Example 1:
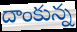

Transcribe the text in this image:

దాంకున్న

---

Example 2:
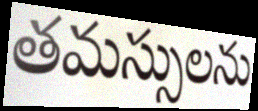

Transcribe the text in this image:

తమస్సులను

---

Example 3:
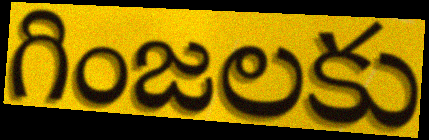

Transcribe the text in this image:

గింజలకు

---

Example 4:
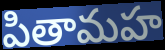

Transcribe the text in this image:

పితామహ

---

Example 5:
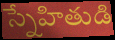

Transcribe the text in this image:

స్నేహితుడి